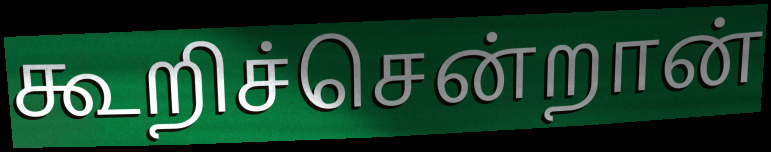
கூறிச்சென்றான்